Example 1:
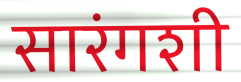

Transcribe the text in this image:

सारंगशी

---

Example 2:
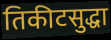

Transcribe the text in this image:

तिकीटसुद्धा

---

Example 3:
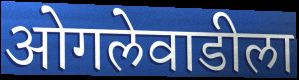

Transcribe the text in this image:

ओगलेवाडीला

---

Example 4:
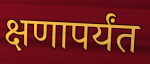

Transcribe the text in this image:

क्षणापर्यंत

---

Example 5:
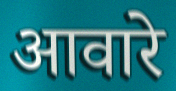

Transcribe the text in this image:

आवारे